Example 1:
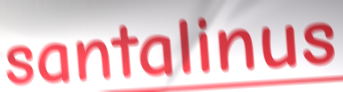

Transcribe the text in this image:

santalinus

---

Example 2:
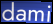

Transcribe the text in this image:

dami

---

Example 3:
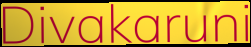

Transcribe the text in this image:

Divakaruni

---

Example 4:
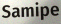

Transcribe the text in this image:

Samipe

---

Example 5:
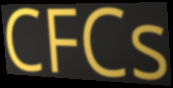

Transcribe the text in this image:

CFCs